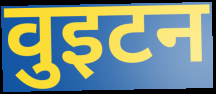
वुइटन